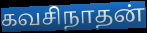
கவசிநாதன்